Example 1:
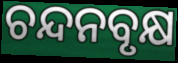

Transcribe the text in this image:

ଚନ୍ଦନବୃକ୍ଷ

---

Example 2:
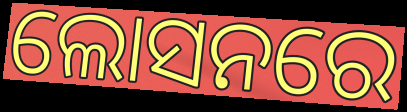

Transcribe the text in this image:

ଲୋସନରେ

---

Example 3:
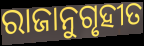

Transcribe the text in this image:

ରାଜାନୁଗୃହୀତ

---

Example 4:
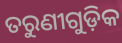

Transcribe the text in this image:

ତରୁଣୀଗୁଡ଼ିକ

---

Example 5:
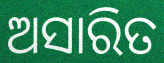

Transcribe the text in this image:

ଅସାରିତ